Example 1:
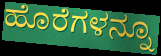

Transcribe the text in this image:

ಹೊರೆಗಳನ್ನೂ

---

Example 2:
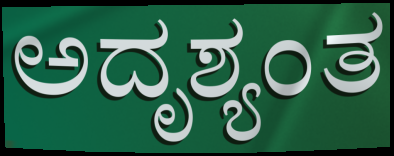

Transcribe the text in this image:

ಅದೃಶ್ಯಂತ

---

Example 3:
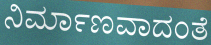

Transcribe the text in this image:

ನಿರ್ಮಾಣವಾದಂತೆ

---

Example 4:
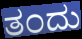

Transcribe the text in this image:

ತಂದು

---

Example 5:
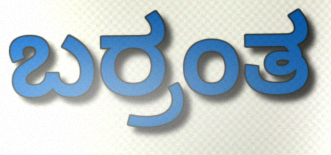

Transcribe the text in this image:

ಬರ್ರಂತ